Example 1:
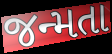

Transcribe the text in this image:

જન્મતા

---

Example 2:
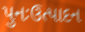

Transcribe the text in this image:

પુનઃઉત્પાદન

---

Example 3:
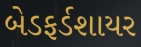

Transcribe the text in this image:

બેડફર્ડશાયર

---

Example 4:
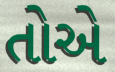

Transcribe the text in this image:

તોએ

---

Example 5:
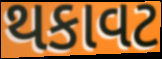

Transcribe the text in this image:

થકાવટ